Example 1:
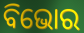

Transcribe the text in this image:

ବିଭୋର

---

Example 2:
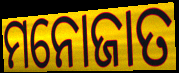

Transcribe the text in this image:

ମନୋଜାତ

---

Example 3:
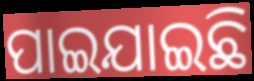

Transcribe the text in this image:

ପାଇଯାଇଛି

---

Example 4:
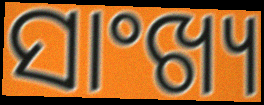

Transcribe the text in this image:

ସାଂଖ୍ଯ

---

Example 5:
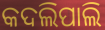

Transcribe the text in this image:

କଦଲିପାଲି